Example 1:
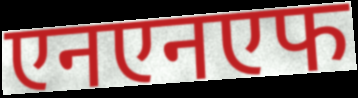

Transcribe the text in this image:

एनएनएफ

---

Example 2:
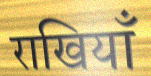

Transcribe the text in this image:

राखियाँ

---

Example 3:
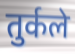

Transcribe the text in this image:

तुर्कले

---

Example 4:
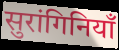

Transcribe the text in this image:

सुरांगिनियाँ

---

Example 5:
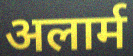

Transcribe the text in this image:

अलार्म